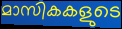
മാസികകളുടെ